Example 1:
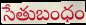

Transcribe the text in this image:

సేతుబంధం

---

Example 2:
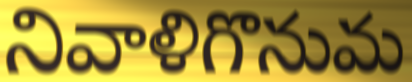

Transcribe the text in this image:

నివాళిగొనుమ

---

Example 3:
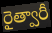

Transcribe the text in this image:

రైత్వారీ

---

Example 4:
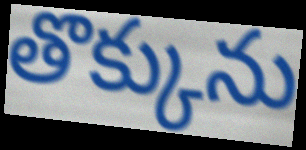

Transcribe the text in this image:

తొక్కును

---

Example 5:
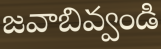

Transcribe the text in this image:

జవాబివ్వండి